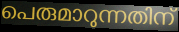
പെരുമാറുന്നതിന്